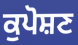
ਕੁਪੋਸ਼ਣ